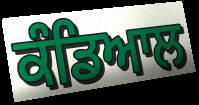
ਕੰਡਿਆਲ